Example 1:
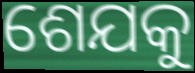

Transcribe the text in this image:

ଶେଯକୁ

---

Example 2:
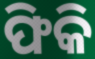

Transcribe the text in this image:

ଫିକି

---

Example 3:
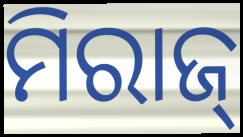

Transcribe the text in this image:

ମିରାଜ୍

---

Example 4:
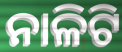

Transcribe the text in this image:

ନାଳିଟି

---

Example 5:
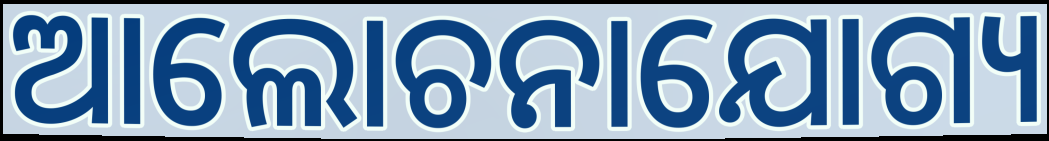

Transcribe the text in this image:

ଆଲୋଚନାଯୋଗ୍ୟ